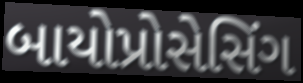
બાયોપ્રોસેસિંગ